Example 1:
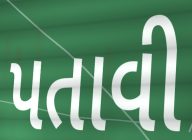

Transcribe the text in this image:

પતાવી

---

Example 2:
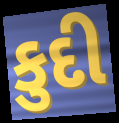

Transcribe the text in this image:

કુદી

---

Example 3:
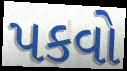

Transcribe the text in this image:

પકવો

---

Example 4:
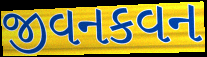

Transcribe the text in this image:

જીવનકવન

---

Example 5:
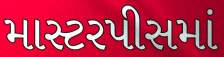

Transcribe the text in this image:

માસ્ટરપીસમાં